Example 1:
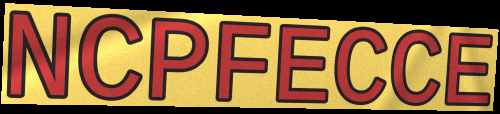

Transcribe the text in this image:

NCPFECCE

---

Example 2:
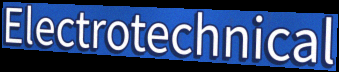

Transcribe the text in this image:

Electrotechnical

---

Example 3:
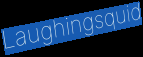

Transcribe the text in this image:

Laughingsquid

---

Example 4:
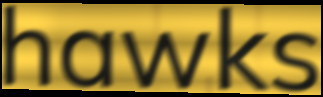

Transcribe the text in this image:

hawks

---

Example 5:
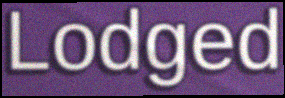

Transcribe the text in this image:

Lodged